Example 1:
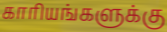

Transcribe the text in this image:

காரியங்களுக்கு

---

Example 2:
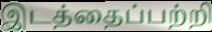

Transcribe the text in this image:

இடத்தைப்பற்றி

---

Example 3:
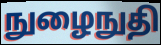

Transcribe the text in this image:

நுழைநுதி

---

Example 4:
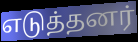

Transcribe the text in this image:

எடுத்தனர்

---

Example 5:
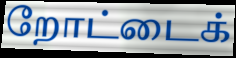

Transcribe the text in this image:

றோட்டைக்